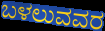
ಬಳಲುವವರ